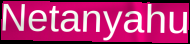
Netanyahu